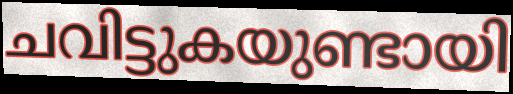
ചവിട്ടുകയുണ്ടായി